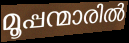
മൂപ്പന്മാരിൽ